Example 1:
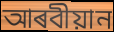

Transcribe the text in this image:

আৰবীয়ান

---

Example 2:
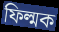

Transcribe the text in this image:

ফিল্মক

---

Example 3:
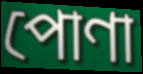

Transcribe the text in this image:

পোণা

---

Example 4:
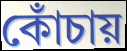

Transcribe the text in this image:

কোঁচায়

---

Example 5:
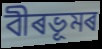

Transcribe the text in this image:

বীৰভূমৰ